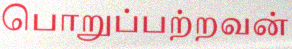
பொறுப்பற்றவன்